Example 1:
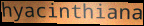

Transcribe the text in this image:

hyacinthiana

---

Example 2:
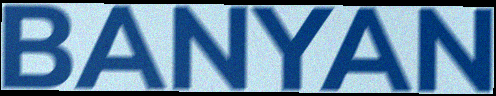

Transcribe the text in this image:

BANYAN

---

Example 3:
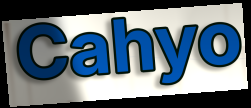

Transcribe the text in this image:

Cahyo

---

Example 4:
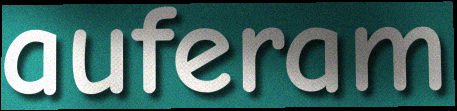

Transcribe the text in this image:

auferam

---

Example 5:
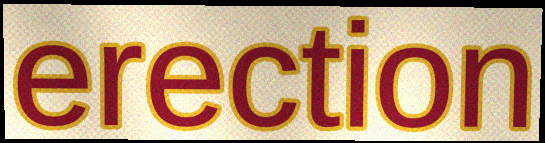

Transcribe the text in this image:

erection